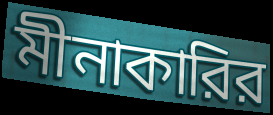
মীনাকারির